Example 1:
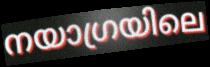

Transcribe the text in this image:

നയാഗ്രയിലെ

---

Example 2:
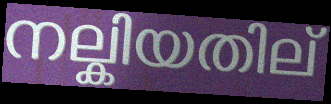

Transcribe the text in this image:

നല്കിയതില്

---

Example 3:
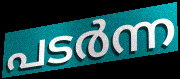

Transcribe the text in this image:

പടർന്ന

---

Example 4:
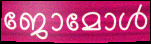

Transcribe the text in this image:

ജോമോൾ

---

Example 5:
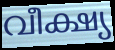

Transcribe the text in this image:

വീക്ഷ്യ